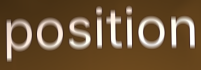
position